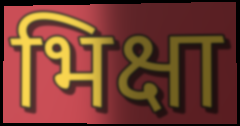
भिक्षा